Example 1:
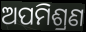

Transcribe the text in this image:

ଅପମିଶ୍ରଣ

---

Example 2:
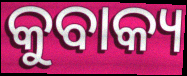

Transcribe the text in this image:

କୁବାକ୍ୟ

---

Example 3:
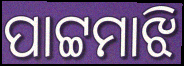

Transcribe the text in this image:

ପାଟ୍ଟମାଝି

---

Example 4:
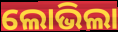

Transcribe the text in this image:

ଲୋଭିଲା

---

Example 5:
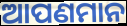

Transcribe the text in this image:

ଆପଣମାନ